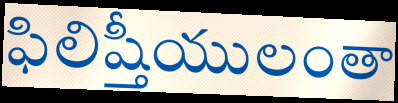
ఫిలిష్తీయులంతా